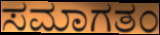
ಸಮಾಗತಂ